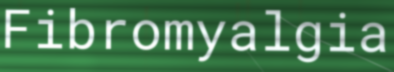
Fibromyalgia